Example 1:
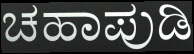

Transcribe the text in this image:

ಚಹಾಪುಡಿ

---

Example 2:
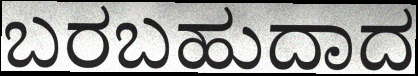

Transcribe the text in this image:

ಬರಬಹುದಾದ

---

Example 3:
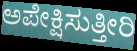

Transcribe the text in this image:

ಅಪೇಕ್ಷಿಸುತ್ತೀರಿ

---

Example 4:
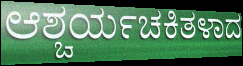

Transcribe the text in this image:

ಆಶ್ಚರ್ಯಚಕಿತಳಾದ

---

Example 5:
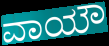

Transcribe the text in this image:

ವಾಯೌ